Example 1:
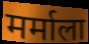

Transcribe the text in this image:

मर्माला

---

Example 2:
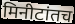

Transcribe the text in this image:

मिनीटांतच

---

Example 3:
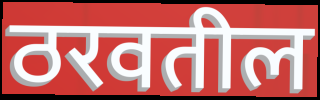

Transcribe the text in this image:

ठरवतील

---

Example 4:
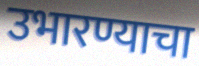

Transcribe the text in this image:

उभारण्याचा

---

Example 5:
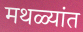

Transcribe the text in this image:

मथळ्यांत